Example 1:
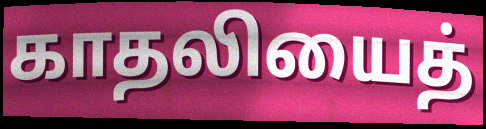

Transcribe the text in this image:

காதலியைத்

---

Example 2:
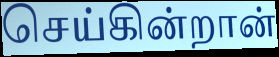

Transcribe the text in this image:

செய்கின்றான்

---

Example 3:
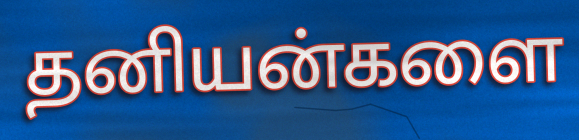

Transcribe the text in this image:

தனியன்களை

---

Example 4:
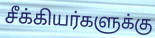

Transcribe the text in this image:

சீக்கியர்களுக்கு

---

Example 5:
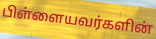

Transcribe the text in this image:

பிள்ளையவர்களின்